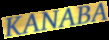
KANABA